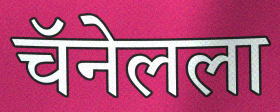
चॅनेलला